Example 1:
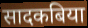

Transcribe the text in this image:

सादकबिया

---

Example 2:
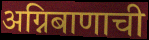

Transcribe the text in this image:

अग्निबाणाची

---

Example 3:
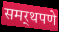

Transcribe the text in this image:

समर्थपणे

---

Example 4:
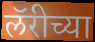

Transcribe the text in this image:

लॅरीच्या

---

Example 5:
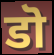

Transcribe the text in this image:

डॊ